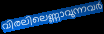
വിരലിലെണ്ണാവുന്നവർ